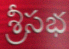
శ్రీసభ